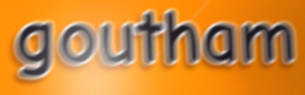
goutham